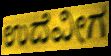
ಉದೆವೀಗ